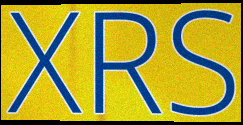
XRS